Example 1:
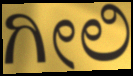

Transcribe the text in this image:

ಗೀಲಿ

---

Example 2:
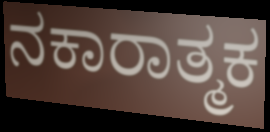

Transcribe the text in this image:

ನಕಾರಾತ್ಮಕ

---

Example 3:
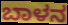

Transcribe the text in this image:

ಬಾಳನ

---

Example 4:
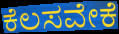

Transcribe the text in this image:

ಕೆಲಸವೇಕೆ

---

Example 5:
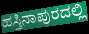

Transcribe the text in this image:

ಹಸ್ತಿನಾಪುರದಲ್ಲಿ